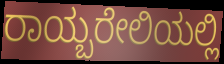
ರಾಯ್ಬರೇಲಿಯಲ್ಲಿ